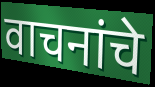
वाचनांचे